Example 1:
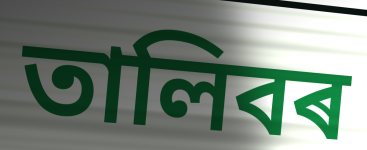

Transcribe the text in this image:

তালিবৰ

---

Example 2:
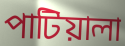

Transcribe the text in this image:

পাটিয়ালা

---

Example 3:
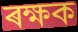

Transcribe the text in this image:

ৰক্ষক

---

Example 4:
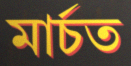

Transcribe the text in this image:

মাৰ্চত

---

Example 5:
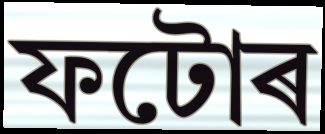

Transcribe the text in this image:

ফটোৰ